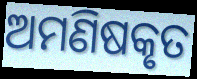
ଅମଣିଷକୃତ